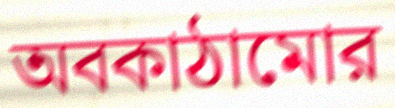
অবকাঠামোর